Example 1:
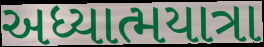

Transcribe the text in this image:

અધ્યાત્મયાત્રા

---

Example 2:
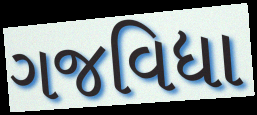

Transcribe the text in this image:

ગજવિદ્યા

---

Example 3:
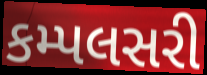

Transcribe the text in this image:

કમ્પલસરી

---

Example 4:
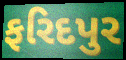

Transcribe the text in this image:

ફરિદપુર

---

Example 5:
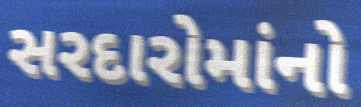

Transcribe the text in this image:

સરદારોમાંનો